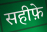
सहीफ़े